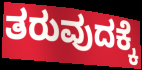
ತರುವುದಕ್ಕೆ